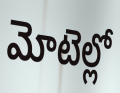
మోటెల్లో